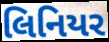
લિનિયર